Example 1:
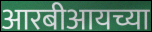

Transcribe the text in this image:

आरबीआयच्या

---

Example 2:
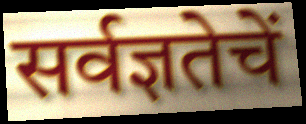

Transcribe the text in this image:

सर्वज्ञतेचें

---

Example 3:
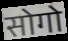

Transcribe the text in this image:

सोगो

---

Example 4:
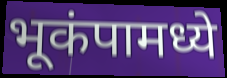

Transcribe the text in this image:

भूकंपामध्ये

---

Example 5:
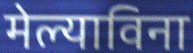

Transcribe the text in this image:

मेल्याविना